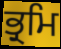
ਭ੍ਰਮਿ